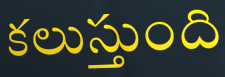
కలుస్తుంది